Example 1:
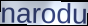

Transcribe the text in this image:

narodu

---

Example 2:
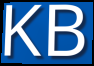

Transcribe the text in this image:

KB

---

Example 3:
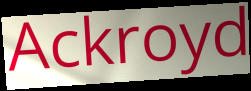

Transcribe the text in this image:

Ackroyd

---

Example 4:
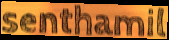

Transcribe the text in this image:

senthamil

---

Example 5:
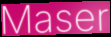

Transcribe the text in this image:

Maser